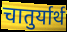
चातुर्यार्थ